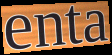
enta